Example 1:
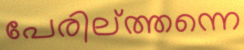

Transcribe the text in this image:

പേരില്ത്തന്നെ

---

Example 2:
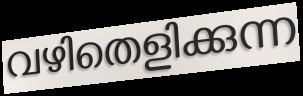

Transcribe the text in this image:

വഴിതെളിക്കുന്ന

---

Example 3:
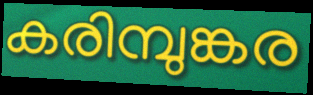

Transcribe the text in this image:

കരിമ്പുങ്കര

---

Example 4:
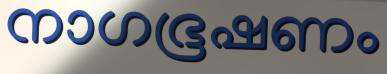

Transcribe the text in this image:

നാഗഭൂഷണം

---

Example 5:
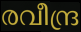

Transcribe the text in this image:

രവീന്ദ്ര